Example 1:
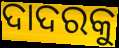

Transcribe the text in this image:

ଦାଦରକୁ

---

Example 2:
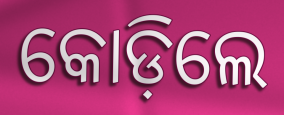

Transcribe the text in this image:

କୋଡ଼ିଲେ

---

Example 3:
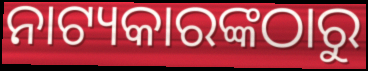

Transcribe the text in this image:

ନାଟ୍ୟକାରଙ୍କଠାରୁ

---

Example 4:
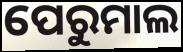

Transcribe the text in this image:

ପେରୁମାଲ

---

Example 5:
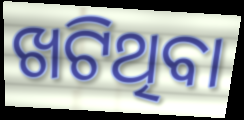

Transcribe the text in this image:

ଖଟିଥିବା